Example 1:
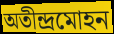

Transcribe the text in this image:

অতীন্দ্রমোহন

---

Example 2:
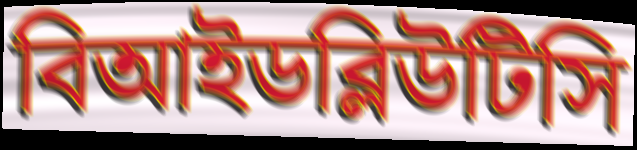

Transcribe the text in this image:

বিআইডব্লিউটিসি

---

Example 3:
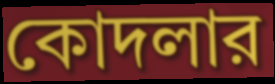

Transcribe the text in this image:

কোদলার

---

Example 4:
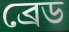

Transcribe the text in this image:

ব্রেড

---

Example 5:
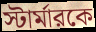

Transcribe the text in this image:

স্টার্মারকে